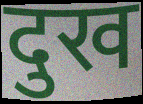
दुख